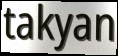
takyan